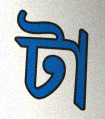
টা